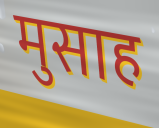
मुसाह